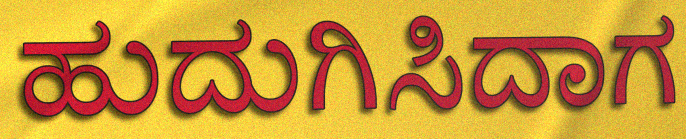
ಹುದುಗಿಸಿದಾಗ